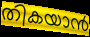
തികയാൻ